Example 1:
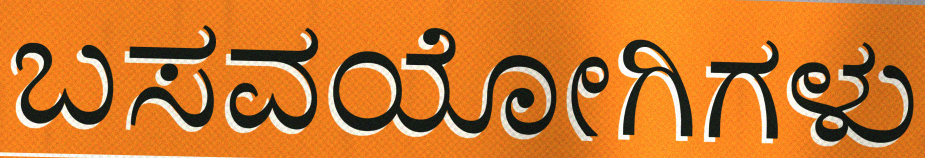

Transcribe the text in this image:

ಬಸವಯೋಗಿಗಳು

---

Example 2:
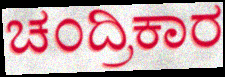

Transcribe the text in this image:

ಚಂದ್ರಿಕಾರ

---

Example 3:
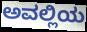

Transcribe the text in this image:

ಅವಲ್ಲಿಯ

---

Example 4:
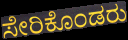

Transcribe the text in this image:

ಸೇರಿಕೊಂಡರು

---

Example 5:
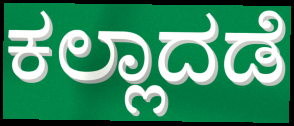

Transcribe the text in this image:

ಕಲ್ಲಾದಡೆ